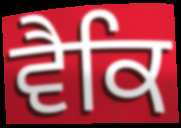
ਵੈਕਿ